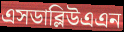
এসডাব্লিউএএন